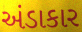
અંડાકાર